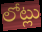
లోట్లు